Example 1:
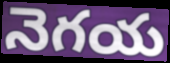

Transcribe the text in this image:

నెగయ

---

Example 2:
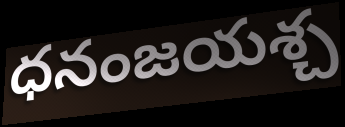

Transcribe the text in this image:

ధనంజయశ్చ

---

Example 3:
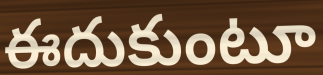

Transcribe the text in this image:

ఈదుకుంటూ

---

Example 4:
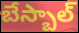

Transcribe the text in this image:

బేస్బాల్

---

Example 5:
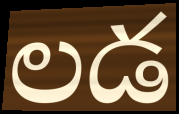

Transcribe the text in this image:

లడ